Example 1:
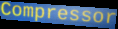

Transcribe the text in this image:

Compressor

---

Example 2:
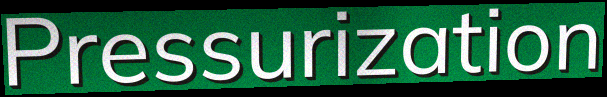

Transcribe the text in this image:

Pressurization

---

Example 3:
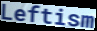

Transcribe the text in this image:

Leftism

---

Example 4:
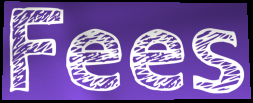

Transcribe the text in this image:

Fees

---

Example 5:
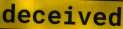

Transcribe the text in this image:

deceived